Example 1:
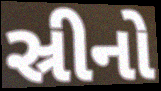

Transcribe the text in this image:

સ્રીનો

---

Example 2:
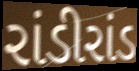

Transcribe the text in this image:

રાંડીરાંડ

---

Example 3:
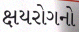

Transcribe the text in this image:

ક્ષયરોગનો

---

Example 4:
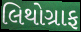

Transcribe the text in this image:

લિથોગ્રાફ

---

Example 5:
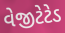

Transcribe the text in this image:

વેજીટેટેડ